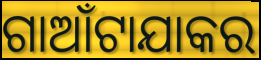
ଗାଆଁଟାଯାକର